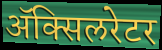
ॲक्सिलरेटर